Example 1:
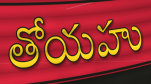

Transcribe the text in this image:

తోయహు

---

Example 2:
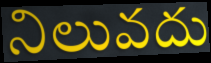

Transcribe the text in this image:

నిలువదు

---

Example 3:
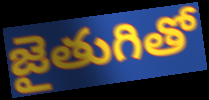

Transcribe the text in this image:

జైతుగితో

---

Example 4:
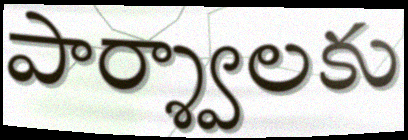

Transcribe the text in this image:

పార్శ్వాలకు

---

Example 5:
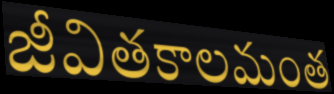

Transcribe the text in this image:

జీవితకాలమంత